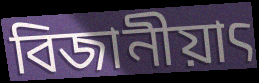
বিজানীয়াৎ